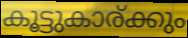
കൂട്ടുകാര്ക്കും